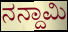
ನನ್ದಾಮಿ